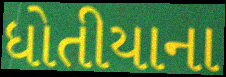
ધોતીયાના